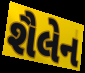
શૈલેન